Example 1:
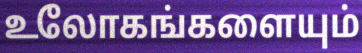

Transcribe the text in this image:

உலோகங்களையும்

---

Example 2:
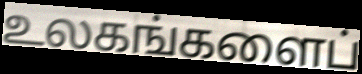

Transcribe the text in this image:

உலகங்களைப்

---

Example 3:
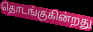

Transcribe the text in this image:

தொடங்குகின்றது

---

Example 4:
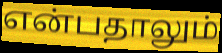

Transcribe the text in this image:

என்பதாலும்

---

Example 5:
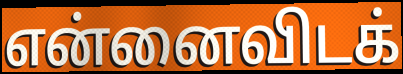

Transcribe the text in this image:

என்னைவிடக்